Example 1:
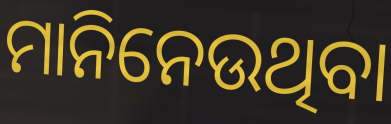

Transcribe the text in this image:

ମାନିନେଉଥିବା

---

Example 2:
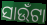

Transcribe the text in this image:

ସାଉଁଟା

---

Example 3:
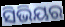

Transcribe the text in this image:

ସିଭିୟର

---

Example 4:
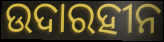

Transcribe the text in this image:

ଉଦାରହୀନ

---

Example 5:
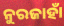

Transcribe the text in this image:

ନୁରଜାହାଁ